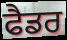
ਫੈਡਰ